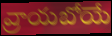
వ్రాయబోయే